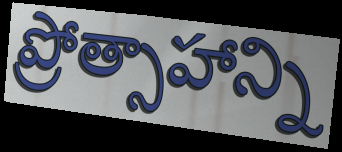
ప్రోత్సాహాన్ని